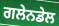
ਗਲੇਨਡੇਲ